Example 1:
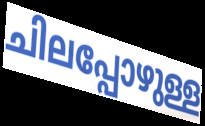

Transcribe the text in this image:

ചിലപ്പോഴുള്ള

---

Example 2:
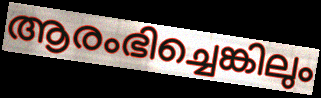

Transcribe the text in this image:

ആരംഭിച്ചെങ്കിലും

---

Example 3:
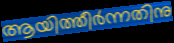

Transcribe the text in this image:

ആയിത്തീർന്നതിനു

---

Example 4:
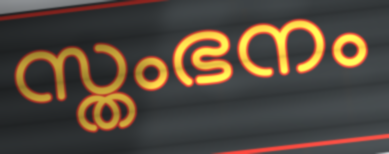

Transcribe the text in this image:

സ്തംഭനം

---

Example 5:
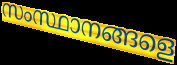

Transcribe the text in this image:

സംസ്ഥാനങ്ങളെ